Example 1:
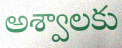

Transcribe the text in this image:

అశ్వాలకు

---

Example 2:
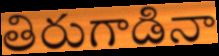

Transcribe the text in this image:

తిరుగాడినా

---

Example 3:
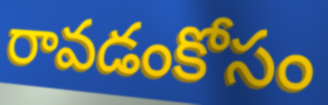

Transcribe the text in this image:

రావడంకోసం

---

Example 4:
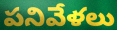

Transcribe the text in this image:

పనివేళలు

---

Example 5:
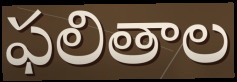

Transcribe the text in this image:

ఫలితాల